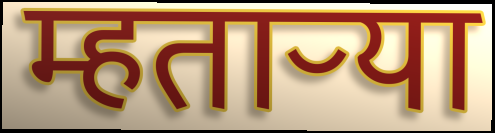
म्हताऱ्या